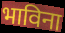
भाविना